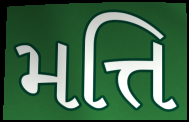
મત્તિ